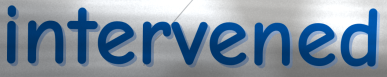
intervened